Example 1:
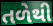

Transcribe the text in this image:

તળેથી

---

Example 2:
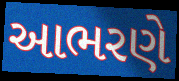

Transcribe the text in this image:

આભરણે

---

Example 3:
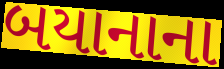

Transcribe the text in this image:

બયાનાના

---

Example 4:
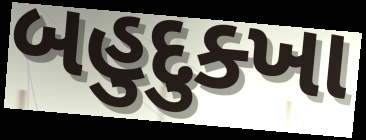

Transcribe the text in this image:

બહુદુક્ખા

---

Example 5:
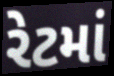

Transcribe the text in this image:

રેટમાં